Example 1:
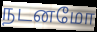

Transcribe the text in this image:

நடனமோ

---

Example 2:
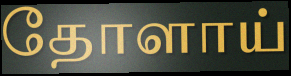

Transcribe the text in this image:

தோளாய்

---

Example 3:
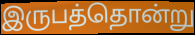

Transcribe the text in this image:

இருபத்தொன்று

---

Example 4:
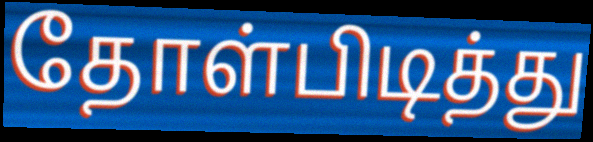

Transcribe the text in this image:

தோள்பிடித்து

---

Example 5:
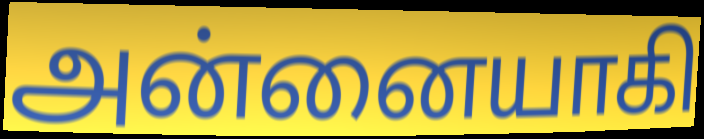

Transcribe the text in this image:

அன்னையாகி